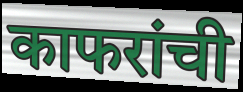
काफरांची